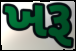
ખરૂ